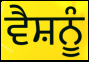
ਵੈਸ਼ਨੂੰ